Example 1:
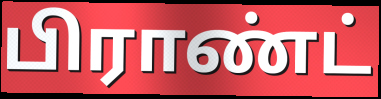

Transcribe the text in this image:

பிராண்ட்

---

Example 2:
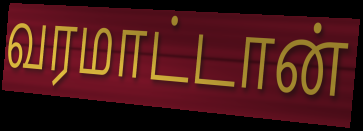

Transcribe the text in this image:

வரமாட்டான்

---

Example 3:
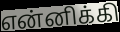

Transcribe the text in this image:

என்னிக்கி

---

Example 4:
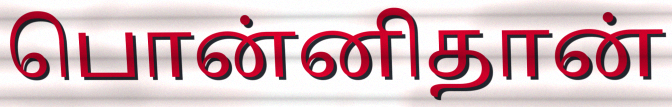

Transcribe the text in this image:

பொன்னிதான்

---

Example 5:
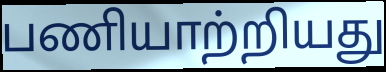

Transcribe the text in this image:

பணியாற்றியது